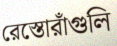
রেস্তোরাঁগুলি